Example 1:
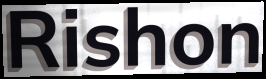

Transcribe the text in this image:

Rishon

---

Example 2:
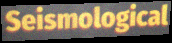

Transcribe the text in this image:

Seismological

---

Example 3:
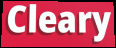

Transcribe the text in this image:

Cleary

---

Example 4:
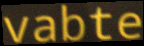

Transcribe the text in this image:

vabte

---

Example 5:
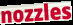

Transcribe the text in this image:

nozzles